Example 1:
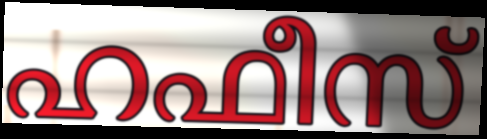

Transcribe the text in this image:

ഹഫീസ്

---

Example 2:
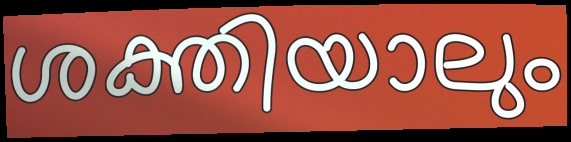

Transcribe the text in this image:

ശക്തിയാലും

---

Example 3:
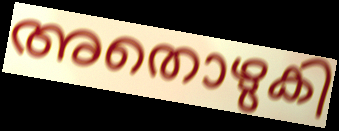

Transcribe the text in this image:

അതൊഴുകി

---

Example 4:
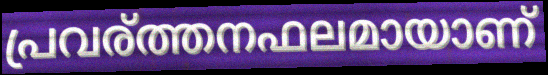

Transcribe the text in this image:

പ്രവര്ത്തനഫലമായാണ്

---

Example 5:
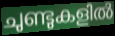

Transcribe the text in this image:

ചുണ്ടുകളിൽ